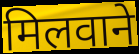
मिलवाने